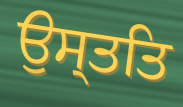
ਉਸ੍ਤਤਿ